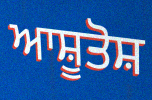
ਆਸ਼ੂਤੋਸ਼